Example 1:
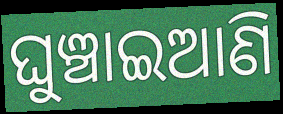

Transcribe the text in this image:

ଘୁଞ୍ଚାଇଆଣି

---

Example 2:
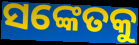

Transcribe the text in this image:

ସଙ୍କେତକୁ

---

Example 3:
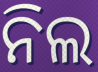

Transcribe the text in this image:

ନିଲ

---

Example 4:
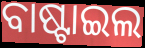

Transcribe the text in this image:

ବାଷ୍ଟାଇଲ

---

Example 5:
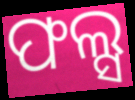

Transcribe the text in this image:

ଫଲ୍ସ